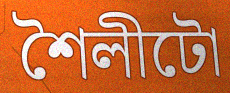
শৈলীটো